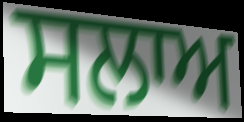
ਸਲਾਅ